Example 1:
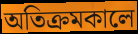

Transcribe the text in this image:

অতিক্রমকালে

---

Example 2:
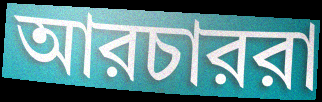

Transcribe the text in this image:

আরচাররা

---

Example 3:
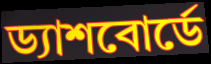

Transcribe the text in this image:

ড্যাশবোর্ডে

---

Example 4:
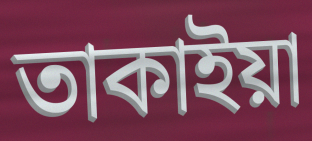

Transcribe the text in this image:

তাকাইয়া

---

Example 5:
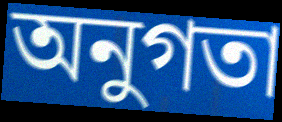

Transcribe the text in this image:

অনুগতা